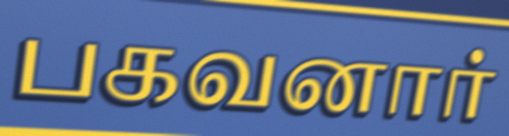
பகவனார்